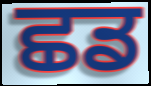
ਛਡ